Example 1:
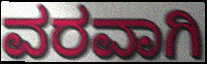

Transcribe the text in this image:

ವರವಾಗಿ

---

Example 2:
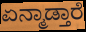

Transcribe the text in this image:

ಏನ್ಮಾಡ್ತಾರೆ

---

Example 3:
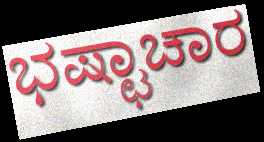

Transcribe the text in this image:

ಭಷ್ಟಾಚಾರ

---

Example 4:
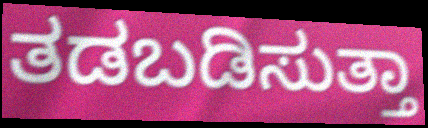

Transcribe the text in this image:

ತಡಬಡಿಸುತ್ತಾ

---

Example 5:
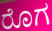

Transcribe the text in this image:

ರೊಗ